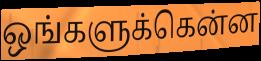
ஒங்களுக்கென்ன